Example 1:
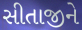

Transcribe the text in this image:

સીતાજીને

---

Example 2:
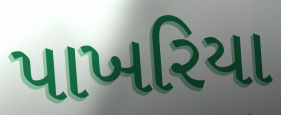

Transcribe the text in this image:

પાખરિયા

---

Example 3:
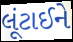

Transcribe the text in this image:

લૂંટાઈને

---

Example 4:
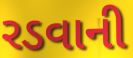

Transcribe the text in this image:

રડવાની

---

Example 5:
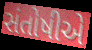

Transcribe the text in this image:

સંતોષીએ